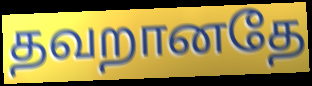
தவறானதே